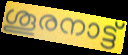
ശൂരനാട്ട്